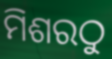
ମିଶରଠୁ